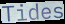
Tides